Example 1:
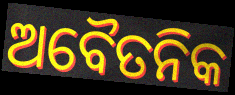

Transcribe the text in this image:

ଅବୈତନିକ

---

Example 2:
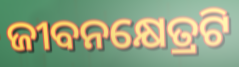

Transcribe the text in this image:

ଜୀବନକ୍ଷେତ୍ରଟି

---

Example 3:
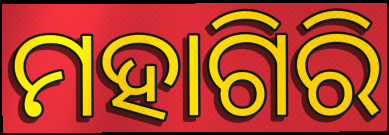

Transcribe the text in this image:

ମହାଗିରି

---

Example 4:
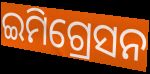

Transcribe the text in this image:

ଇମିଗ୍ରେସନ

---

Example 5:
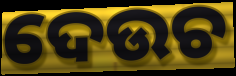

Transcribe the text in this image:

ଦେଉଚ